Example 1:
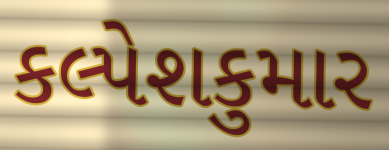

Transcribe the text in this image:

કલ્પેશકુમાર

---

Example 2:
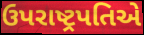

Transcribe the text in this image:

ઉપરાષ્ટ્રપતિએ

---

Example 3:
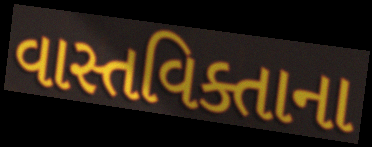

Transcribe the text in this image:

વાસ્તવિક્તાના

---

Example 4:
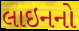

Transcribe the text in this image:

લાઇનનો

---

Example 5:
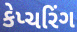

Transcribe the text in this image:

કેપ્ચરિંગ